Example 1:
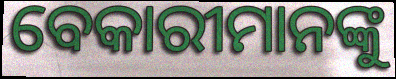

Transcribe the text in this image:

ବେକାରୀମାନଙ୍କୁ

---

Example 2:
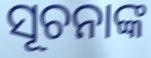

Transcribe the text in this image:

ସୂଚନାଙ୍କ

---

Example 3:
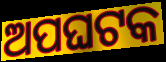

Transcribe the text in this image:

ଅପଘଟକ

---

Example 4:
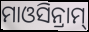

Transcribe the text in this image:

ମାଓସିନ୍ରାମ୍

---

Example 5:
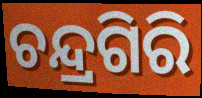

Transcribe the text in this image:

ଚନ୍ଦ୍ରଗିରି